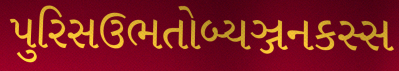
પુરિસઉભતોબ્યઞ્જનકસ્સ